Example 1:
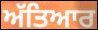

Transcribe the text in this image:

ਅੱਤਿਆਰ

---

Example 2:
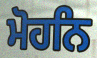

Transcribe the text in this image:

ਮੋਹਨਿ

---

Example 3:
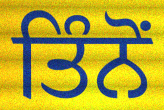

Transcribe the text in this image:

ਤਿੰਨੋਂ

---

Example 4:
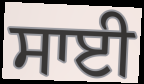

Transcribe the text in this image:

ਸਾਈ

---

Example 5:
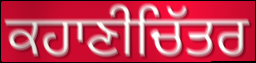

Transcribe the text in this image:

ਕਹਾਣੀਚਿੱਤਰ